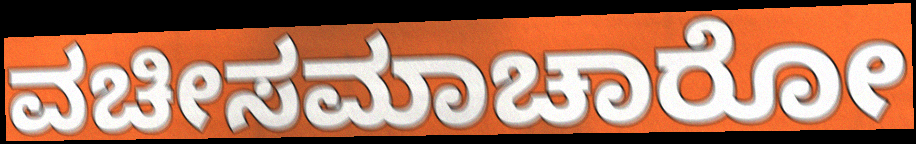
ವಚೀಸಮಾಚಾರೋ